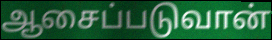
ஆசைப்படுவான்